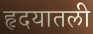
हृदयातली